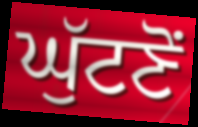
ਘੁੱਟਣੋਂ